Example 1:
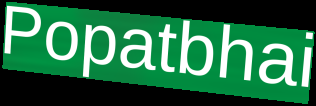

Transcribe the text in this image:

Popatbhai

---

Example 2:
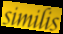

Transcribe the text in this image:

similis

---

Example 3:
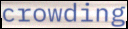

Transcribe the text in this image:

crowding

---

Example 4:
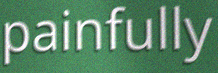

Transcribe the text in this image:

painfully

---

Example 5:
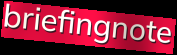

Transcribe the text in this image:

briefingnote